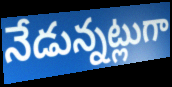
నేడున్నట్లుగా